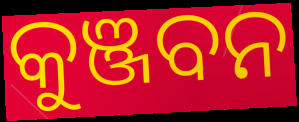
କୁଞ୍ଜବନ